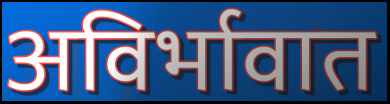
अविर्भावात